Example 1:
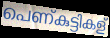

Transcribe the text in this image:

പെണ്കുട്ടികള്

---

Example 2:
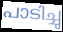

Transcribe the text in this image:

പാടിച്ചു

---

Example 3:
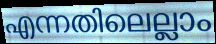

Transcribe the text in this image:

എന്നതിലെല്ലാം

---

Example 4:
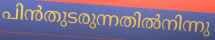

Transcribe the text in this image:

പിൻതുടരുന്നതിൽനിന്നു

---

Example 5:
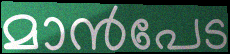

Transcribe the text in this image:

മാൻപേട